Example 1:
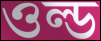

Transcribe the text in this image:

ওল্ড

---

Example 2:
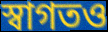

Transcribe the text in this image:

স্বাগতও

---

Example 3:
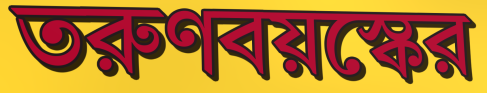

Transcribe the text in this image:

তরুণবয়স্কের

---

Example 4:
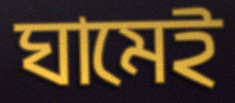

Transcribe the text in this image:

ঘামেই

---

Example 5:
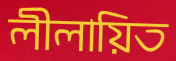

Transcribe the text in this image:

লীলায়িত